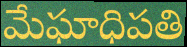
మేఘాధిపతి